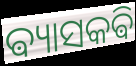
ଵ୍ୟାସକଵି